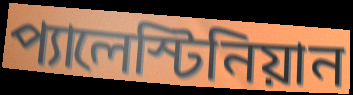
প্যালেস্টিনিয়ান